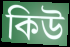
কিউ